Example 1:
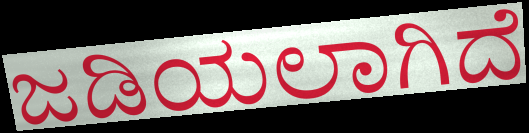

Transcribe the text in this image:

ಜಡಿಯಲಾಗಿದೆ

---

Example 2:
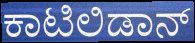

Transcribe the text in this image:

ಕಾಟಿಲಿಡಾನ್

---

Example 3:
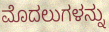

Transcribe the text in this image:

ಮೊದಲುಗಳನ್ನು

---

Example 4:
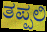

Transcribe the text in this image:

ತಪ್ಪಲಿ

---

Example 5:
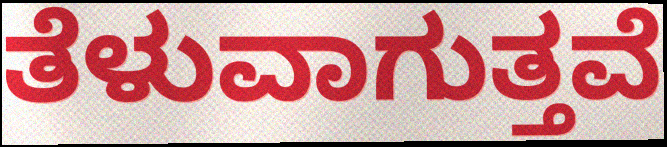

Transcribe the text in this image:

ತೆಳುವಾಗುತ್ತವೆ